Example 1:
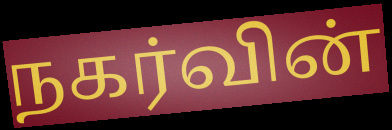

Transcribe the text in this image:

நகர்வின்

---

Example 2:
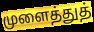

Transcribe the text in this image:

முளைத்துத்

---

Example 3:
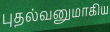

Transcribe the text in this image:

புதல்வனுமாகிய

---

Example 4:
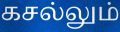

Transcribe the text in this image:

கசல்லும்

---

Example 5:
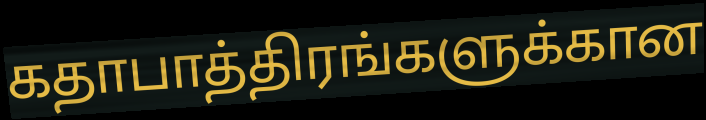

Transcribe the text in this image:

கதாபாத்திரங்களுக்கான